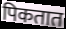
पिकतात